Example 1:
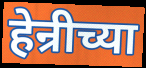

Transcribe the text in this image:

हेन्रीच्या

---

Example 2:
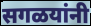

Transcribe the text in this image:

सगळयांनी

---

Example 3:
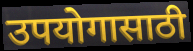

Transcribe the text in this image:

उपयोगासाठी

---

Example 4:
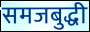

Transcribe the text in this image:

समजबुद्धी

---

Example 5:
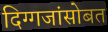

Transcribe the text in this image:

दिग्गजांसोबत